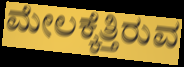
ಮೇಲಕ್ಕೆತ್ತಿರುವ